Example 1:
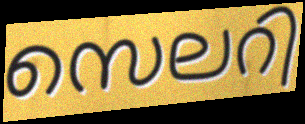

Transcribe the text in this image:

സെലറി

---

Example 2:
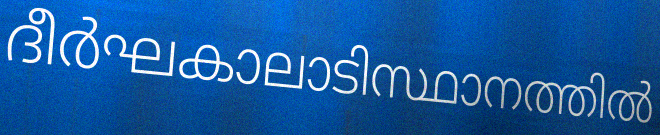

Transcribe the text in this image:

ദീർഘകാലാടിസ്ഥാനത്തിൽ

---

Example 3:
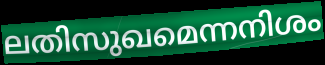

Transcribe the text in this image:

ലതിസുഖമെന്നനിശം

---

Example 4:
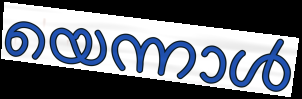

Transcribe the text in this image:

യെന്നാൾ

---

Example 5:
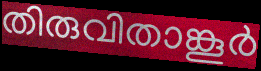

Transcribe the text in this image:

തിരുവിതാങ്കൂർ